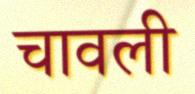
चावली